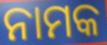
ନାମକ